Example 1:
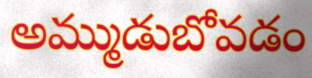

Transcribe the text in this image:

అమ్ముడుబోవడం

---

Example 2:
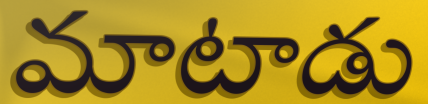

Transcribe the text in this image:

మాటాడు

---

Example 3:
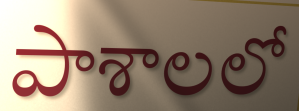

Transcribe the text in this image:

పాశాలలో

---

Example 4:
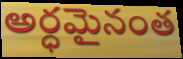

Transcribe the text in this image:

అర్ధమైనంత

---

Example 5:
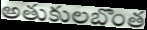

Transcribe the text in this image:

అతుకులబొంత